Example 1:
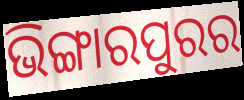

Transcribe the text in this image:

ଭିଙ୍ଗାରପୁରର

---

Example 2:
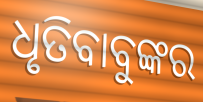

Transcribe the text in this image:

ଧୃତିବାବୁଙ୍କର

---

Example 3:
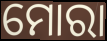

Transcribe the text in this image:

ମୋରା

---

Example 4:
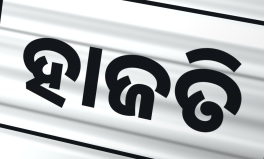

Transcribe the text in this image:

ହାଜତି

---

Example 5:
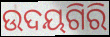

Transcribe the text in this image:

ଉଦୟଗିରି